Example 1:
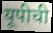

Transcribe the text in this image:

यूपीची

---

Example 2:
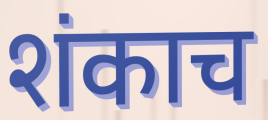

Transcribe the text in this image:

शंकाच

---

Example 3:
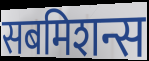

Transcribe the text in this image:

सबमिशन्स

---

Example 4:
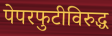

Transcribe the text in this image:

पेपरफुटीविरुद्ध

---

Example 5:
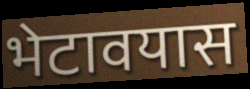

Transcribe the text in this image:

भेटावयास